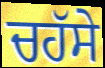
ਚਹੱਸੇ